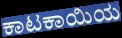
ಕಾಟಕಾಯಿಯ